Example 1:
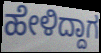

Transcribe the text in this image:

ಹೇಳಿದ್ದಾಗ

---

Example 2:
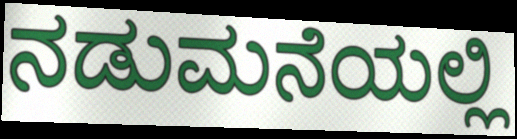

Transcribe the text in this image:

ನಡುಮನೆಯಲ್ಲಿ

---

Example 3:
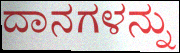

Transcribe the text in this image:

ದಾನಗಳನ್ನು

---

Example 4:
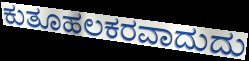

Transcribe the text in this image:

ಕುತೂಹಲಕರವಾದುದು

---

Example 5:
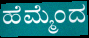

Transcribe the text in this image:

ಹೆಮ್ಮೆಂದ